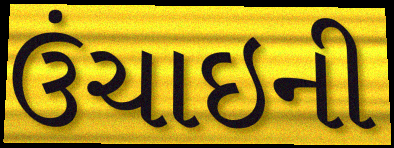
ઉંચાઇની